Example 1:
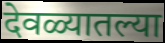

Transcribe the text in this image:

देवळ्यातल्या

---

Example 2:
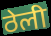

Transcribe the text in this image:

ठेली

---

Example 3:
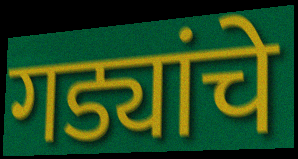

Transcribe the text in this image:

गड्यांचे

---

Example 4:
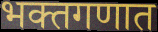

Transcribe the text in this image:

भक्तगणात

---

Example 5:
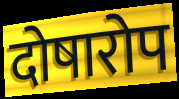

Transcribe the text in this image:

दोषारोप